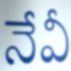
నేవీ